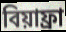
বিয়াফ্রা